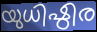
യുധിഷ്ഠിര